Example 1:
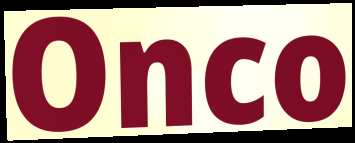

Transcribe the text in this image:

Onco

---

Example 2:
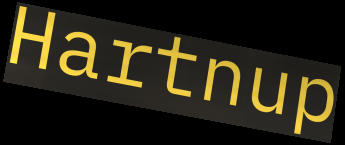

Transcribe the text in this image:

Hartnup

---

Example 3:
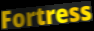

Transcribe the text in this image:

Fortress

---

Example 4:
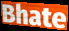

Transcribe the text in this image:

Bhate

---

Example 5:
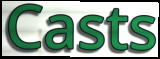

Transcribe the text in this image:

Casts